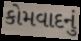
કોમવાદનું